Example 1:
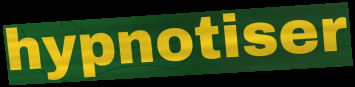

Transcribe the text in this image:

hypnotiser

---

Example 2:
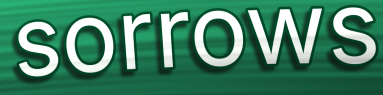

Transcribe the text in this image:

sorrows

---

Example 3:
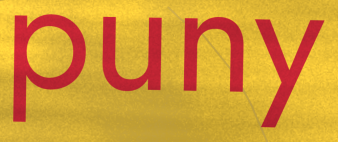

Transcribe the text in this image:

puny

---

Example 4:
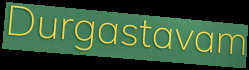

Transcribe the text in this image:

Durgastavam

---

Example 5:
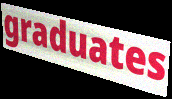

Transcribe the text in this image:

graduates